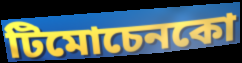
টিমোচেনকো